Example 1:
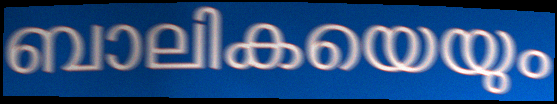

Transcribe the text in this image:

ബാലികയെയും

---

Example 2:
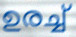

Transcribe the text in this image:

ഉരച്ച്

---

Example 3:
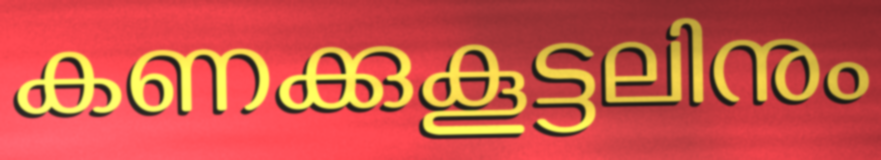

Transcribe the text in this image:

കണക്കുകൂട്ടലിനും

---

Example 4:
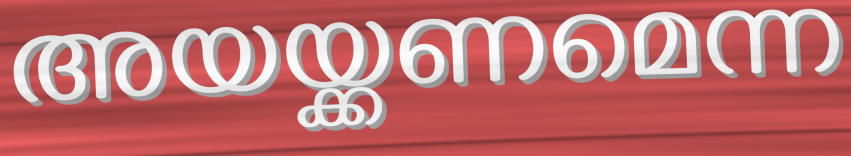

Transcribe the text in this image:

അയയ്ക്കണമെന്ന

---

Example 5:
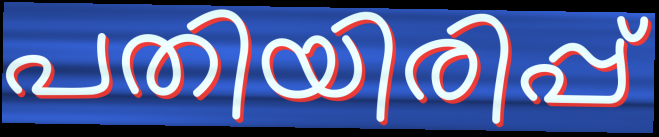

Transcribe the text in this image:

പതിയിരിപ്പ്